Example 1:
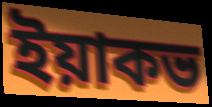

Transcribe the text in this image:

ইয়াকভ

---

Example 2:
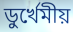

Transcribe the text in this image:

ডুর্খেমীয়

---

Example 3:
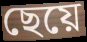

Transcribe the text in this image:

ছেয়ে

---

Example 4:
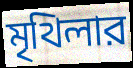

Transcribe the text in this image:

মৃথিলার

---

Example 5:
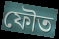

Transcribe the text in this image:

ফৌত